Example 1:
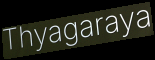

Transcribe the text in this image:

Thyagaraya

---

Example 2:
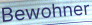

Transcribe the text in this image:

Bewohner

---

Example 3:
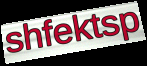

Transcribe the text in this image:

shfektsp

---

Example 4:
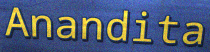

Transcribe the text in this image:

Anandita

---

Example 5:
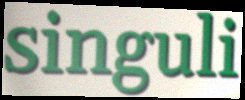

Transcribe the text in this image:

singuli